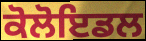
ਕੋਲੋਇਡਲ